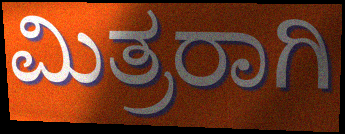
ಮಿತ್ರರಾಗಿ